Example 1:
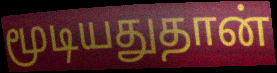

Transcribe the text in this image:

மூடியதுதான்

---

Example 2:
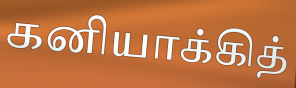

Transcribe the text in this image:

கனியாக்கித்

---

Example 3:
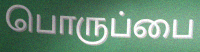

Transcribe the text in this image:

பொருப்பை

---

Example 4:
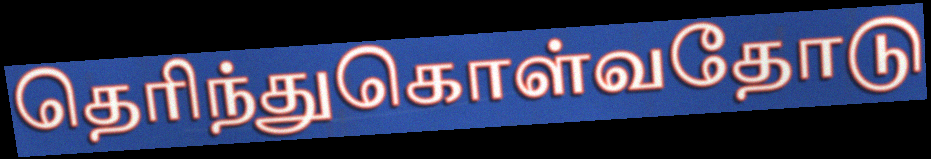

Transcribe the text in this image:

தெரிந்துகொள்வதோடு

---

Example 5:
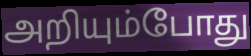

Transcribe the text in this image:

அறியும்போது